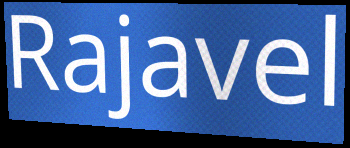
Rajavel